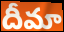
దీమా